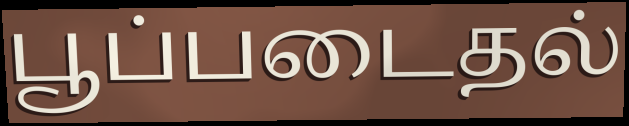
பூப்படைதல்